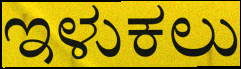
ಇಳುಕಲು